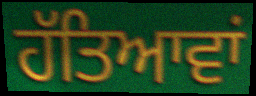
ਹੱਤਿਆਵਾਂ